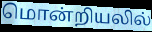
மொன்றியலில்